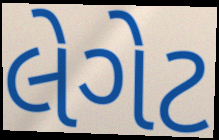
લેગેટ